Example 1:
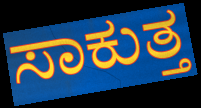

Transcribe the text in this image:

ಸಾಕುತ್ತ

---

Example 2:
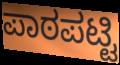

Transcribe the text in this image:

ಪಾಠಪಟ್ಟಿ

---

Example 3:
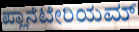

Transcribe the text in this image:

ಪ್ಲಾನೆಟೇರಿಯಮ್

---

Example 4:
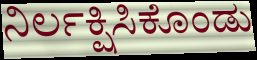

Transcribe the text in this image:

ನಿರ್ಲಕ್ಷಿಸಿಕೊಂಡು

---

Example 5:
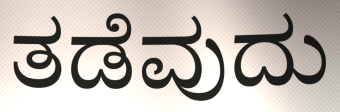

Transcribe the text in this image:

ತಡೆವುದು